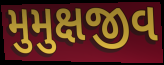
મુમુક્ષજીવ